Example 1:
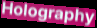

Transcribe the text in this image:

Holography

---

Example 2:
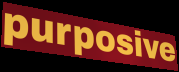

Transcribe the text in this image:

purposive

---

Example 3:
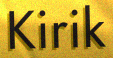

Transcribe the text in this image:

Kirik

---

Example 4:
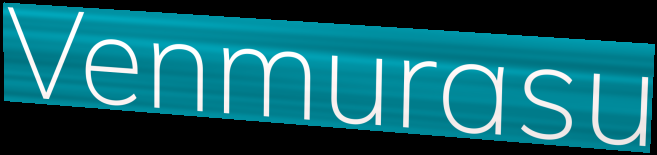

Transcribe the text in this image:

Venmurasu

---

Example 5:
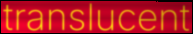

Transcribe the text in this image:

translucent